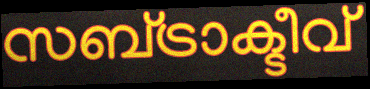
സബ്ട്രാക്ടീവ്